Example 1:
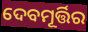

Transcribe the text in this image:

ଦେବମୂର୍ତ୍ତିର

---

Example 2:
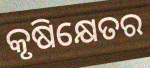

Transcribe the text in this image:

କୃଷିକ୍ଷେତର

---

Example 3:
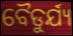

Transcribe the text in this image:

ବୈଡୁର୍ଯ୍ୟ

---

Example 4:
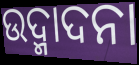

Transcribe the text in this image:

ଉଦ୍ମାଦନା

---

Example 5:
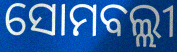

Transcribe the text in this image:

ସୋମବଲ୍ଲୀ